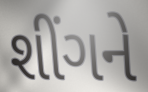
શીંગને